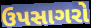
ઉપસાગરો